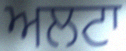
ਅਲਟਾ